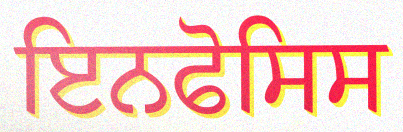
ਇਨਫੋਸਿਸ